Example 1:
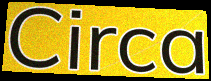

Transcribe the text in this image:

Circa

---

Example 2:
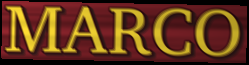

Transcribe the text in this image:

MARCO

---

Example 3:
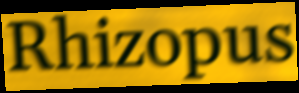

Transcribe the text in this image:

Rhizopus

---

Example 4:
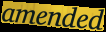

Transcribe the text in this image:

amended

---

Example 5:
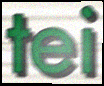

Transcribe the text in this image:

tei